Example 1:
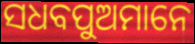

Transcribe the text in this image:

ସଧବପୁଅମାନେ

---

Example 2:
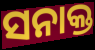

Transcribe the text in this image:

ସନାକ୍ତ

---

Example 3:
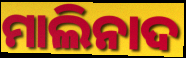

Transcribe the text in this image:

ମାଲିନାଦ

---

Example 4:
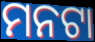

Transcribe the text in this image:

ମନଟା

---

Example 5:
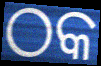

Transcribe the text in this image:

ଠକ